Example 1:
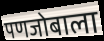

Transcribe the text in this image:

पणजोबाला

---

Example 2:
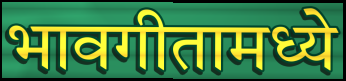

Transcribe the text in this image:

भावगीतामध्ये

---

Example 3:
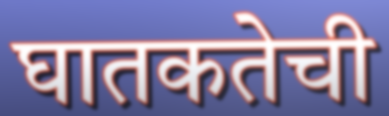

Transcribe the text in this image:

घातकतेची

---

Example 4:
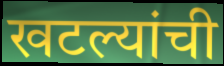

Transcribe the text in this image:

खटल्यांची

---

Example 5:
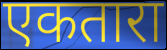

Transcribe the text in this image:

एकतारा